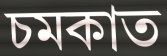
চমকাত